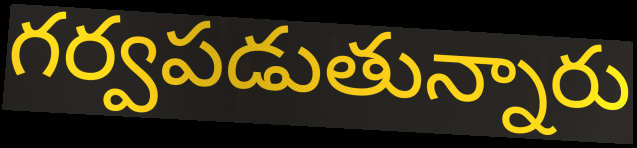
గర్వపడుతున్నారు